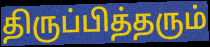
திருப்பித்தரும்